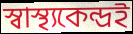
স্বাস্থ্যকেন্দ্ৰই